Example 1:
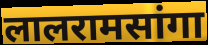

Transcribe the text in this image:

लालरामसांगा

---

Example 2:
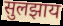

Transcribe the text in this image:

सुलझाय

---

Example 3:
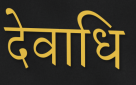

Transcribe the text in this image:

देवाधि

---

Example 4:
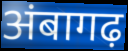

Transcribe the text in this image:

अंबागढ़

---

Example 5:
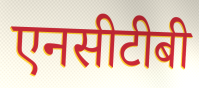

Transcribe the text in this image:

एनसीटीबी